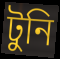
টুনি